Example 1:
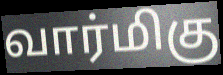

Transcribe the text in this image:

வார்மிகு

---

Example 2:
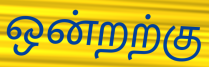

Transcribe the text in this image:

ஒன்றற்கு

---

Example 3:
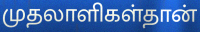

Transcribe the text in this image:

முதலாளிகள்தான்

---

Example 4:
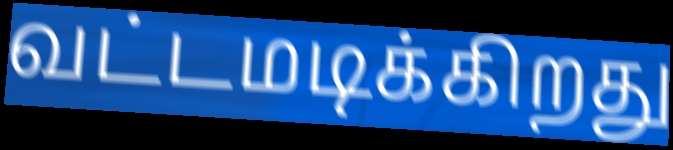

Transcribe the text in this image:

வட்டமடிக்கிறது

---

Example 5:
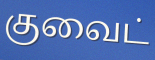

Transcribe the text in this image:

குவைட்